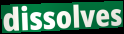
dissolves